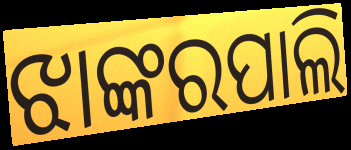
ଝାଙ୍କରପାଲି